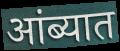
आंब्यात